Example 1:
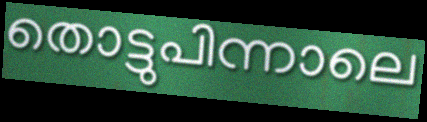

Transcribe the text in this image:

തൊട്ടുപിന്നാലെ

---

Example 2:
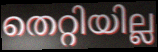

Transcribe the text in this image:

തെറ്റിയില്ല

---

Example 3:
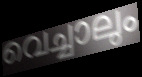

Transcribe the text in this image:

വെച്ചാലും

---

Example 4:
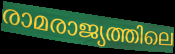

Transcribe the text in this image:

രാമരാജ്യത്തിലെ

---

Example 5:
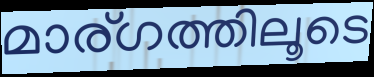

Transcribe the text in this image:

മാര്ഗത്തിലൂടെ